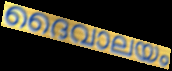
ദൈവാലയം